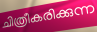
ചിത്രീകരിക്കുന്ന